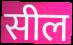
सील